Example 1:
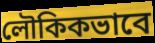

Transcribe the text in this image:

লৌকিকভাবে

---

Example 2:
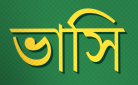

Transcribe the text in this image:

ভাসি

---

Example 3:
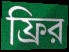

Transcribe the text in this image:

ফ্রির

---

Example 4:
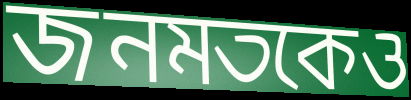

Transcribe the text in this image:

জনমতকেও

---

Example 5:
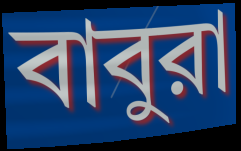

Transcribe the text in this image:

বাবুরা